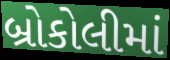
બ્રોકોલીમાં